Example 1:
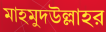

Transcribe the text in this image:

মাহমুদউল্লাহর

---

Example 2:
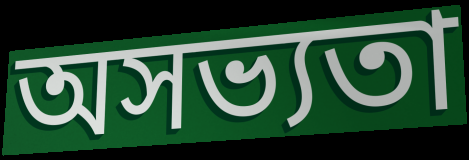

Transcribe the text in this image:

অসভ্যতা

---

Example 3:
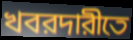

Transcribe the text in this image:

খবরদারীতে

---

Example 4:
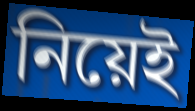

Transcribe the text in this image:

নিয়েই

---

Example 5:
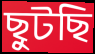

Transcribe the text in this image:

ছুটছি